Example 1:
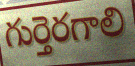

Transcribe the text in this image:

గుర్తెరగాలి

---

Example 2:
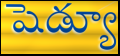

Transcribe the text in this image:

షెడ్యూ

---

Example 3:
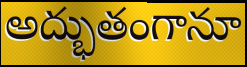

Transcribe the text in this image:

అద్భుతంగానూ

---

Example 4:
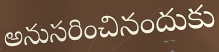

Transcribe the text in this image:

అనుసరించినందుకు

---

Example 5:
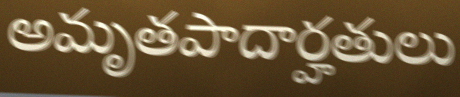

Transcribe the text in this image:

అమృతపాదార్హతులు